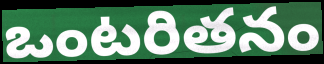
ఒంటరితనం